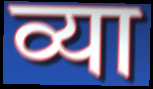
व्या